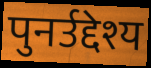
पुनर्उद्देश्य